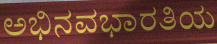
ಅಭಿನವಭಾರತಿಯ